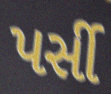
પર્સી